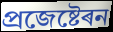
প্ৰজেষ্টেৰন